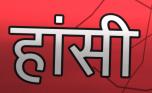
हांसी